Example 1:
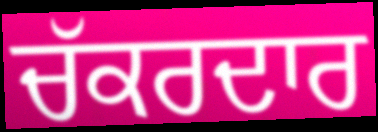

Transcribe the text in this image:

ਚੱਕਰਦਾਰ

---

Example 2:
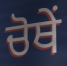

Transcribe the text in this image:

ਚੋਥੇਂ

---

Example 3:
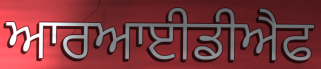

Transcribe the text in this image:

ਆਰਆਈਡੀਐਫ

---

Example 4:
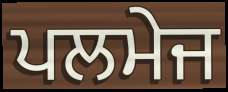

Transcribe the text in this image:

ਪਲਮੇਜ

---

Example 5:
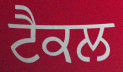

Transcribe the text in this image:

ਟੈਕਲ